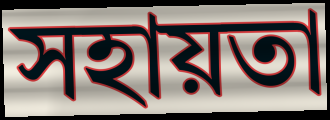
সহায়তা